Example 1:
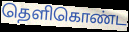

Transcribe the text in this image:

தெளிகொண்ட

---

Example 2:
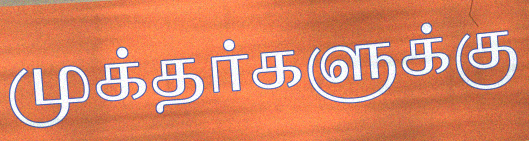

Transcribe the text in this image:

முக்தர்களுக்கு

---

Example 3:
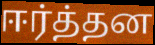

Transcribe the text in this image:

ஈர்த்தன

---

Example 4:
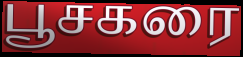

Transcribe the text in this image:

பூசகரை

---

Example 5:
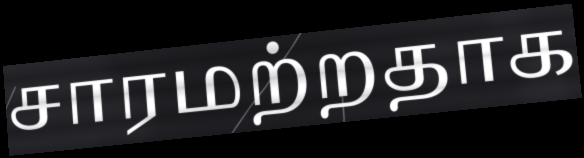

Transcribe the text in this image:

சாரமற்றதாக